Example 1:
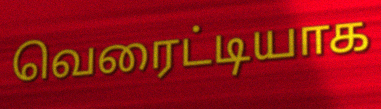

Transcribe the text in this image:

வெரைட்டியாக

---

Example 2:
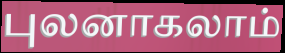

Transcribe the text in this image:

புலனாகலாம்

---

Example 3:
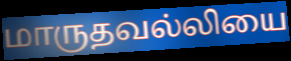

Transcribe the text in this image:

மாருதவல்லியை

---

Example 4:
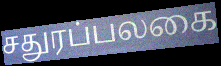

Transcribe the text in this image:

சதுரப்பலகை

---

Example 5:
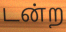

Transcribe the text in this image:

டன்ற